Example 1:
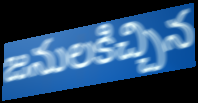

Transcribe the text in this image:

జనులకిచ్చిన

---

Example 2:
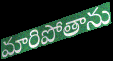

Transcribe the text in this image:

మారిపోతాను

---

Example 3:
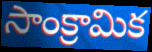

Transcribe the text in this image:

సాంక్రామిక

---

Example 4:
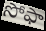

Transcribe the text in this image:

సోఫా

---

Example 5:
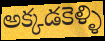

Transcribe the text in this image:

అక్కడకెళ్ళి